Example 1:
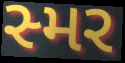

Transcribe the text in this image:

સ્મર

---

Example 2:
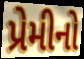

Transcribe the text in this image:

પ્રેમીનો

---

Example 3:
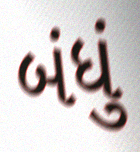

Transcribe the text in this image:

બંધું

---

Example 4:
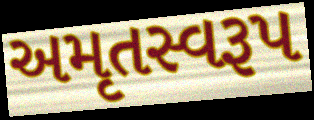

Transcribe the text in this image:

અમૃતસ્વરૂપ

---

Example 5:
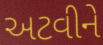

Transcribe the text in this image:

અટવીને